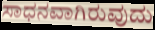
ಸಾಧನವಾಗಿರುವುದು